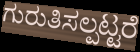
ಗುರುತಿಸಲ್ಪಟ್ಟರೆ